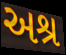
અશ્ર